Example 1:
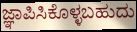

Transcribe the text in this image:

ಜ್ಞಾಪಿಸಿಕೊಳ್ಳಬಹುದು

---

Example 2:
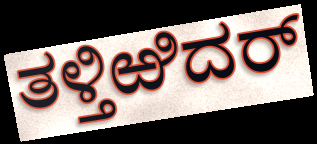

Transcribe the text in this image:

ತಳ್ತಿಱಿದರ್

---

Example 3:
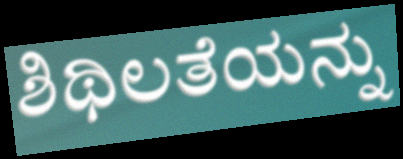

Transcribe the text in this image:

ಶಿಥಿಲತೆಯನ್ನು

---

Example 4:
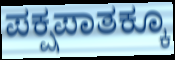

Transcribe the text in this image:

ಪಕ್ಷಪಾತಕ್ಕೂ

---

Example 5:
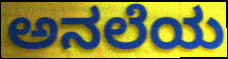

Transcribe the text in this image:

ಅನಲೆಯ